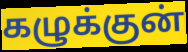
கழுக்குன்